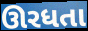
ઊરધતા